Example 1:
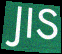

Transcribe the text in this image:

JIS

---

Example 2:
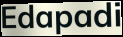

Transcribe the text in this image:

Edapadi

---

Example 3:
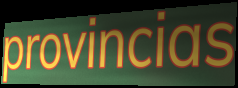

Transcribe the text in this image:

provincias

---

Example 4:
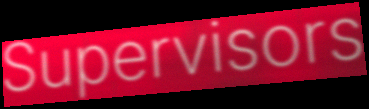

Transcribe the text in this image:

Supervisors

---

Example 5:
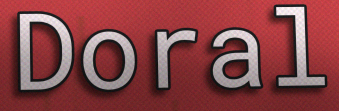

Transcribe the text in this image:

Doral